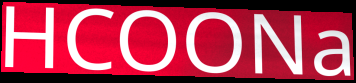
HCOONa